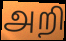
அறி